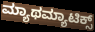
ಮ್ಯಾಥಮ್ಯಾಟಿಕ್ಸ್